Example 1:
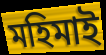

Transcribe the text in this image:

মহিমাই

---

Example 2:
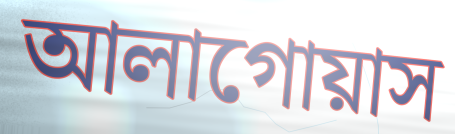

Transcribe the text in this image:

আলাগোয়াস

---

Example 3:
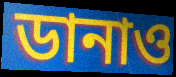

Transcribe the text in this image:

ডানাও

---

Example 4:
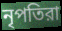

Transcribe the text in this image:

নৃপতিরা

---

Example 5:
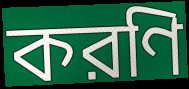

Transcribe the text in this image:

করণি